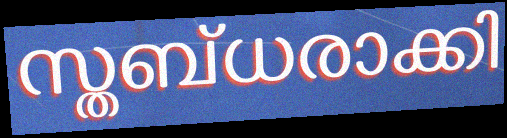
സ്തബ്ധരാക്കി